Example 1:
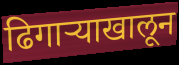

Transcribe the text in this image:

ढिगाऱ्याखालून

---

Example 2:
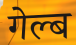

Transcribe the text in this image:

गेल्ब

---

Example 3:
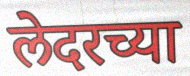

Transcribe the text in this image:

लेदरच्या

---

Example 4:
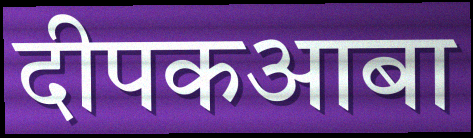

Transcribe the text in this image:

दीपकआबा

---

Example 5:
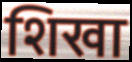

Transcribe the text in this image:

शिखा